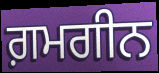
ਗ਼ਮਗੀਨ